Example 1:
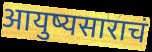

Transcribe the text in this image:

आयुष्यसाराचं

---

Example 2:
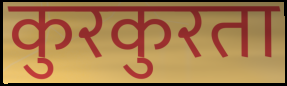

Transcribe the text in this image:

कुरकुरता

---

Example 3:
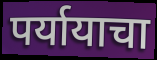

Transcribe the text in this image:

पर्यायाचा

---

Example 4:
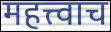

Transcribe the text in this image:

महत्त्वाच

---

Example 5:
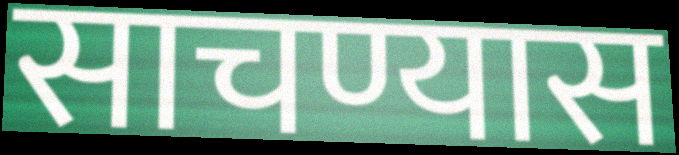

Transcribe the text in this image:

साचण्यास